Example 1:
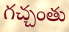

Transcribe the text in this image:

గచ్చంతు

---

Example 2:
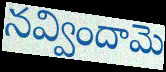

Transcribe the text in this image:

నవ్విందామె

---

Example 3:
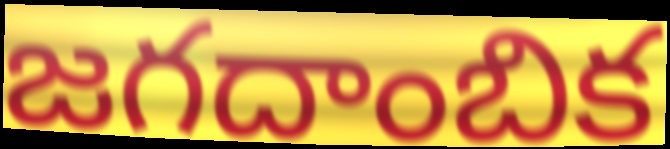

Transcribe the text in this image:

జగదాంబిక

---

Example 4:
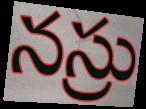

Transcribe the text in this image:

నస్రు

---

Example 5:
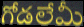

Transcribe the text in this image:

గోడలేమీ